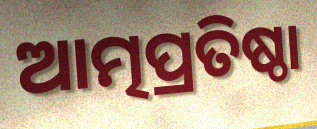
ଆତ୍ମପ୍ରତିଷ୍ଠା